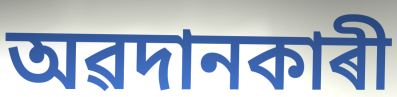
অৱদানকাৰী